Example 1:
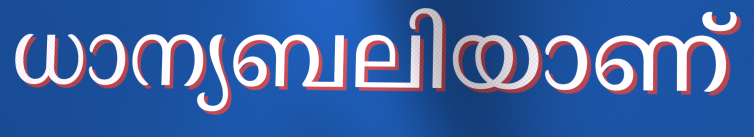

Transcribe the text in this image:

ധാന്യബലിയാണ്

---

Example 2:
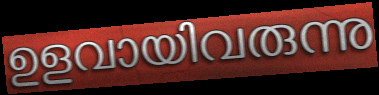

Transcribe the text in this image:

ഉളവായിവരുന്നു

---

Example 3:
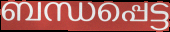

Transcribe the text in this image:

ബന്ധപ്പെട്ട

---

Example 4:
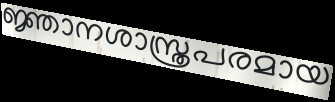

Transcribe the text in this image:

ജ്ഞാനശാസ്ത്രപരമായ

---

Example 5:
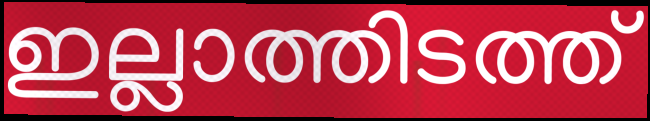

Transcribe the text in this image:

ഇല്ലാത്തിടത്ത്